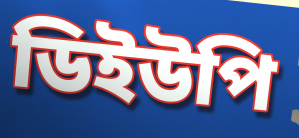
ডিইউপি